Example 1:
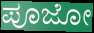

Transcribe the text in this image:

ಪೂಜೋ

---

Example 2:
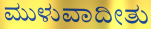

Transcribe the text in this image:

ಮುಳುವಾದೀತು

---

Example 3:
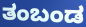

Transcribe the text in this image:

ತಂಬಂಡ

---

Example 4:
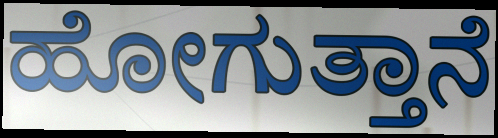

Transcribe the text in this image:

ಹೋಗುತ್ತಾನೆ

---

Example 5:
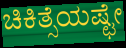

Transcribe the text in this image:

ಚಿಕಿತ್ಸೆಯಷ್ಟೇ